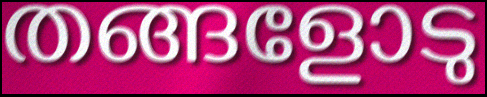
തങ്ങളോടു